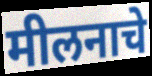
मीलनाचे